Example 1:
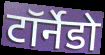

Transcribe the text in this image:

टॉर्नेडो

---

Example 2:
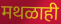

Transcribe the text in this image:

मथळाही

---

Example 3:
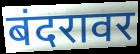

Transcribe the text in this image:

बंदरावर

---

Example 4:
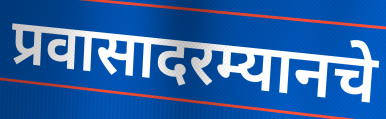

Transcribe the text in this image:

प्रवासादरम्यानचे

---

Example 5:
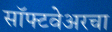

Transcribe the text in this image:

सॉफ्टवेअरचा